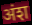
अंश